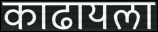
काढायला